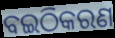
ବଇଠିକରଣ